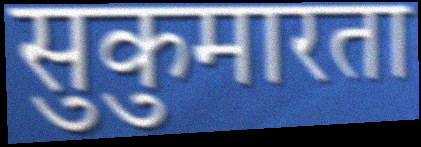
सुकुमारता